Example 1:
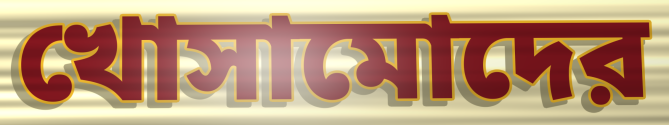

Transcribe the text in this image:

খোসামোদের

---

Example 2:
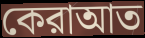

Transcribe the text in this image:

কেরাআত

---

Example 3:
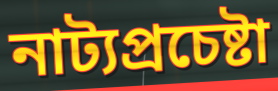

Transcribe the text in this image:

নাট্যপ্রচেষ্টা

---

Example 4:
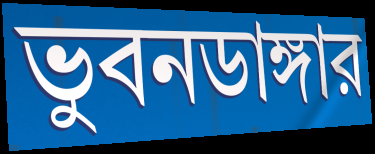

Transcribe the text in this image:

ভুবনডাঙ্গার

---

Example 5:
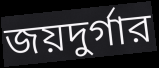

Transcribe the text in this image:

জয়দুর্গার